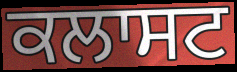
ਕਲਾਸਟ